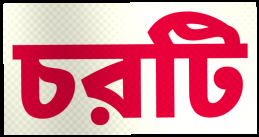
চরটি